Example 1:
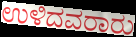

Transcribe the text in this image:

ಉಳಿದವರಾರು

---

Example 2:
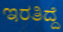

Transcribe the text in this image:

ಇರತಿದ್ದೆ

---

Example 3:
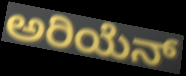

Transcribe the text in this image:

ಅರಿಯೆನ್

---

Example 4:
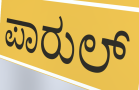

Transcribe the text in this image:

ಪಾರುಲ್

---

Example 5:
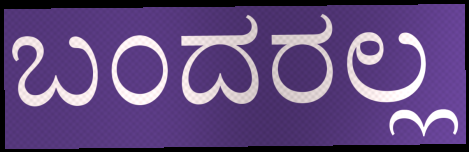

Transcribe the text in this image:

ಬಂದರಲ್ಲ